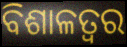
ବିଶାଳତ୍ୱର